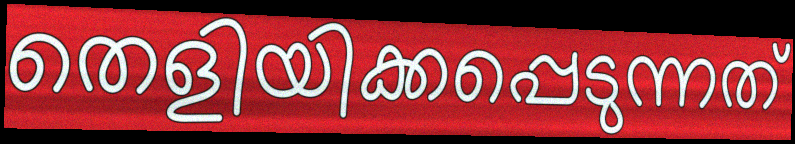
തെളിയിക്കപ്പെടുന്നത്